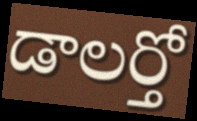
డాలర్తో